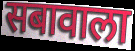
सबावाला